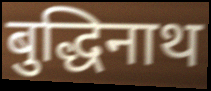
बुद्धिनाथ